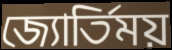
জ্যোর্তিময়